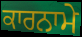
ਕਾਰਨਾਮੇ